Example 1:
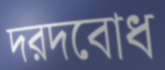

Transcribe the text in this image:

দরদবোধ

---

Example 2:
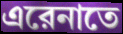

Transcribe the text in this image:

এরেনাতে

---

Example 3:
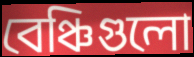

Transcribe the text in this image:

বেঞ্চিগুলো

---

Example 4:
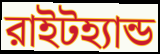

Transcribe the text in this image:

রাইটহ্যান্ড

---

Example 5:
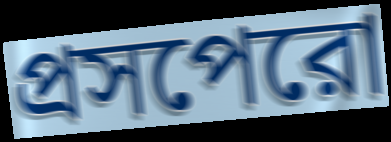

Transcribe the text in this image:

প্রসপেরো